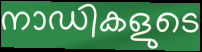
നാഡികളുടെ